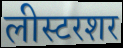
लीस्टरशर